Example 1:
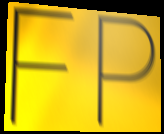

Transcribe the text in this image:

FP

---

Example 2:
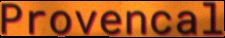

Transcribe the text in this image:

Provencal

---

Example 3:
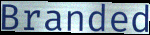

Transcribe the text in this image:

Branded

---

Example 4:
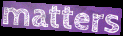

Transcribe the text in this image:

matters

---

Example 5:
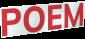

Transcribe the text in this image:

POEM